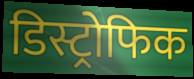
डिस्ट्रोफिक